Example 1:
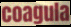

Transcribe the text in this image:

coagula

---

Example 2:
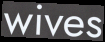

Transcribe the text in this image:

wives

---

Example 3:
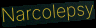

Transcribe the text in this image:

Narcolepsy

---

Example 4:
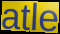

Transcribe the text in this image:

atle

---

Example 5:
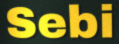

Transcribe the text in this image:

Sebi